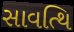
સાવત્થિ